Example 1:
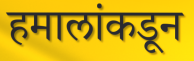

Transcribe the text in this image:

हमालांकडून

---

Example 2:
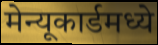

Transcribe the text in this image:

मेन्यूकार्डमध्ये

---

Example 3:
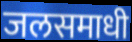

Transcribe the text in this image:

जलसमाधी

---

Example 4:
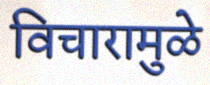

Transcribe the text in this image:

विचारामुळे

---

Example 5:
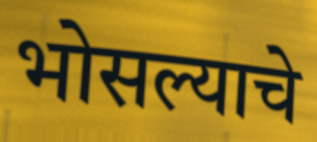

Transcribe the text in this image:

भोसल्याचे